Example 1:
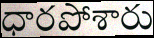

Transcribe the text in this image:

ధారపోశారు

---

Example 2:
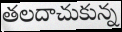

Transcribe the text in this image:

తలదాచుకున్న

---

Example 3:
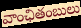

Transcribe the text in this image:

వాంఛితంబులు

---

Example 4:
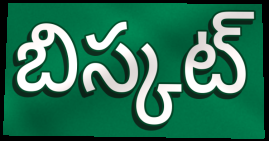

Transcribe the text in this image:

బిస్కట్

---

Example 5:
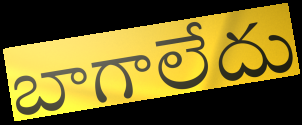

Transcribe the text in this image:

బాగాలేదు